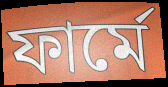
ফার্মে